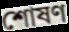
শোষণ